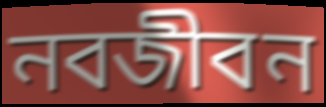
নবজীবন